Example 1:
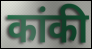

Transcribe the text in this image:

कांकी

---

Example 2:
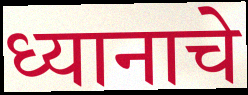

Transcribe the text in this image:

ध्यानाचे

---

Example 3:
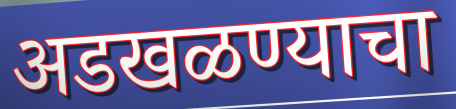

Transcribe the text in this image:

अडखळण्याचा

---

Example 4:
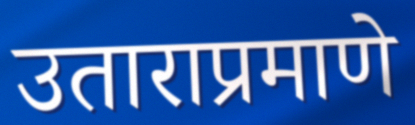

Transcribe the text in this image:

उताराप्रमाणे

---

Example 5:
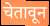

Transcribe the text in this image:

चेतावून